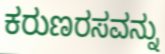
ಕರುಣರಸವನ್ನು